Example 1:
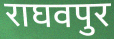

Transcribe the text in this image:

राघवपुर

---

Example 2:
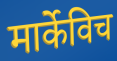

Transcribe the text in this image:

मार्केविच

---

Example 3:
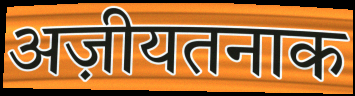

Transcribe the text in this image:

अज़ीयतनाक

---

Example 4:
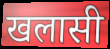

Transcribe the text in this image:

खलासी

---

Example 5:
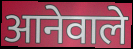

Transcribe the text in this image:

आनेवाले